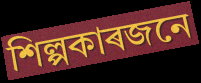
শিল্পকাৰজনে